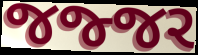
જજ્જર